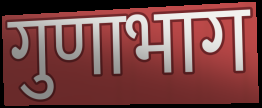
गुणाभाग